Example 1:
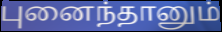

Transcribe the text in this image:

புனைந்தானும்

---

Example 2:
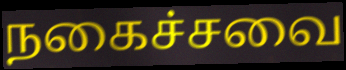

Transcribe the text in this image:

நகைச்சவை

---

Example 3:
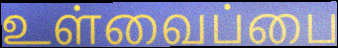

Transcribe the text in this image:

உள்வைப்பை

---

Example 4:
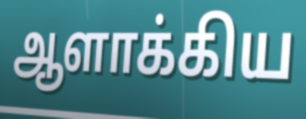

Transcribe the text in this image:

ஆளாக்கிய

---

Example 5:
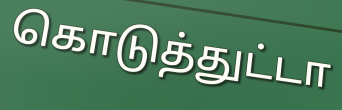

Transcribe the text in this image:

கொடுத்துட்டா